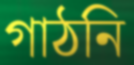
গাঠনি